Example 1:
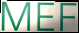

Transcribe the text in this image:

MEF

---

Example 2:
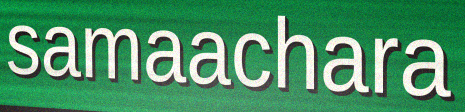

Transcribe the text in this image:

samaachara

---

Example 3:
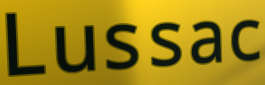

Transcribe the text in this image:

Lussac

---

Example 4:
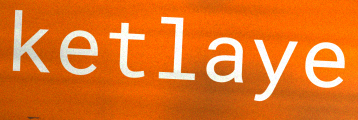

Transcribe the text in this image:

ketlaye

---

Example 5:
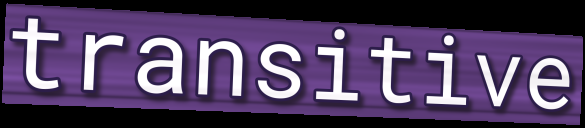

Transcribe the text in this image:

transitive